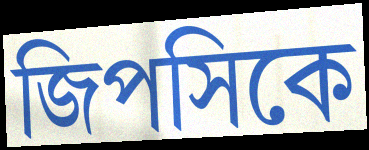
জিপসিকে